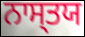
ਨਾਸ੍ਤਯ